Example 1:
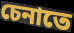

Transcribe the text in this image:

চেনাতে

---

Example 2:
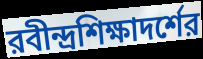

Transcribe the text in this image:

রবীন্দ্রশিক্ষাদর্শের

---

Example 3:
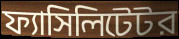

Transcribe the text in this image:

ফ্যাসিলিটেটর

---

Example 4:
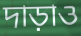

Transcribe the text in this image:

দাড়াও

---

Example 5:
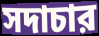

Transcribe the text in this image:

সদাচার